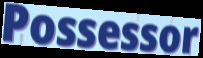
Possessor